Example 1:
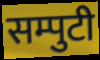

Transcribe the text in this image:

सम्पुटी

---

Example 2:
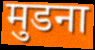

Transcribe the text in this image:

मुडना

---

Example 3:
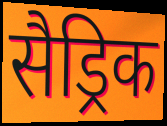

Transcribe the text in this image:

सैड्रिक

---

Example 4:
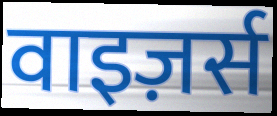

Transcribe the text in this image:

वाइज़र्स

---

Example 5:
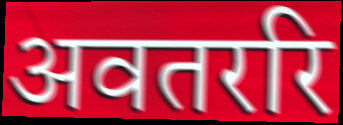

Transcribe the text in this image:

अवतररि